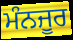
ਮੰਨਜੂਰ